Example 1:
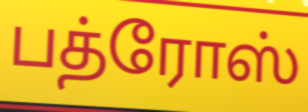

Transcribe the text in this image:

பத்ரோஸ்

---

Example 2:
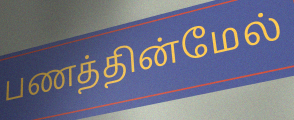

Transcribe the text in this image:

பணத்தின்மேல்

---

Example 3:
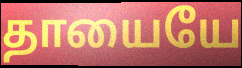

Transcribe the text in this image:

தாயையே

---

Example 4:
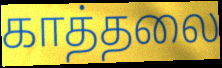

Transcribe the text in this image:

காத்தலை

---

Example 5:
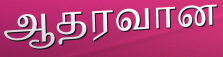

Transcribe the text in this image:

ஆதரவான